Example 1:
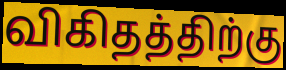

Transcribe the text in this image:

விகிதத்திற்கு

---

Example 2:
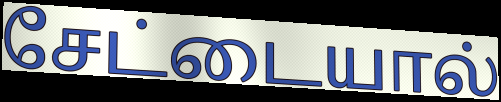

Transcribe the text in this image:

சேட்டையால்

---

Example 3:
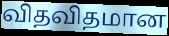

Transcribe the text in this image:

விதவிதமான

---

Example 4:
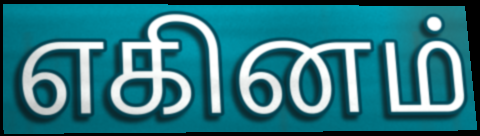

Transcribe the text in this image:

எகினம்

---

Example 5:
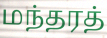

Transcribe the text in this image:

மந்தரத்